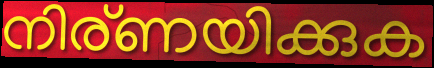
നിര്ണയിക്കുക